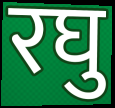
रघु